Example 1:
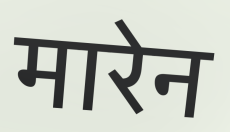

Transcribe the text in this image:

मारेन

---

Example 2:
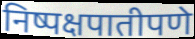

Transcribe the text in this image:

निष्पक्षपातीपणे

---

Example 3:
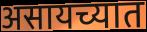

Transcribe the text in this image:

असायच्यात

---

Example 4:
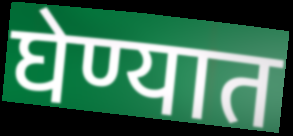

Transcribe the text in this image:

घेण्यात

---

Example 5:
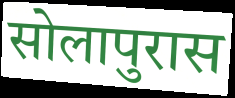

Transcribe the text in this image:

सोलापुरास